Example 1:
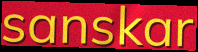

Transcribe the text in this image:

sanskar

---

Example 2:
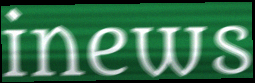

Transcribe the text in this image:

inews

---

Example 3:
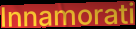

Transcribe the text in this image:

Innamorati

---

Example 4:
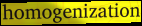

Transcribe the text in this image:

homogenization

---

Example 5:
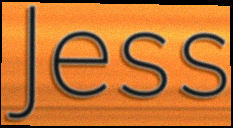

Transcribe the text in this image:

Jess